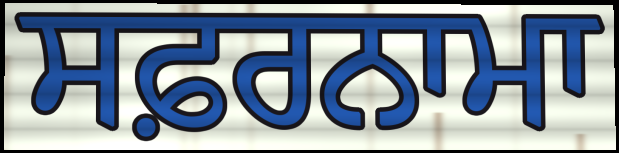
ਸਫ਼ਰਨਾਮਾ